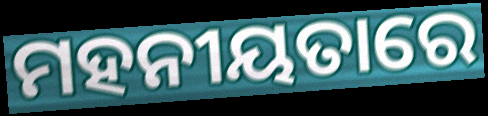
ମହନୀୟତାରେ